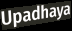
Upadhaya